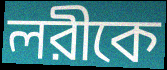
লরীকে